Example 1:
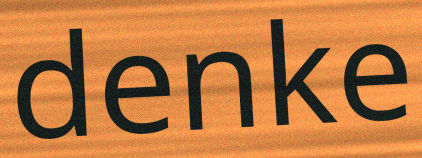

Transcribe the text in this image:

denke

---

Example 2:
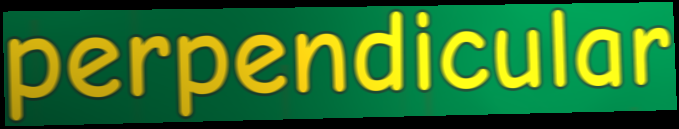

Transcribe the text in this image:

perpendicular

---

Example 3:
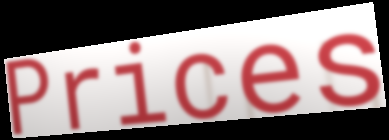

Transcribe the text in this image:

Prices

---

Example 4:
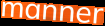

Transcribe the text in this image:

manner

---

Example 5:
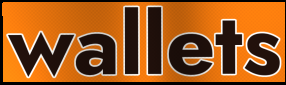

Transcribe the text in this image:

wallets